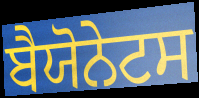
ਬੈਯੋਨੇਟਸ